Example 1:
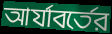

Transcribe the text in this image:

আর্যাবর্তের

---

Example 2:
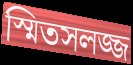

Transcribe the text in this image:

স্মিতসলজ্জ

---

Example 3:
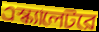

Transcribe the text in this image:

এস্ক্যালেটরে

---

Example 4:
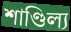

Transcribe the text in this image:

শাণ্ডিল্য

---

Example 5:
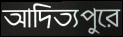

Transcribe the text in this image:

আদিত্যপুরে